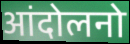
आंदोलनो